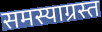
समस्याग्रस्त